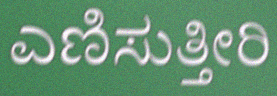
ಎಣಿಸುತ್ತೀರಿ